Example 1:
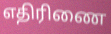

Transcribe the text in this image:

எதிரிணை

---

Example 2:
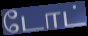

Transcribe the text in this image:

டோட்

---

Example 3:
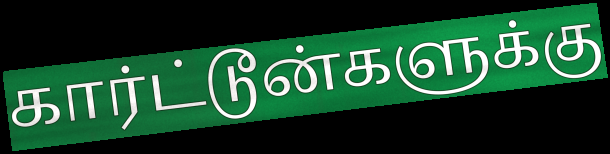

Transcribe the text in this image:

கார்ட்டூன்களுக்கு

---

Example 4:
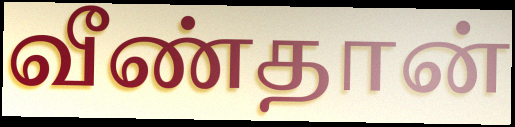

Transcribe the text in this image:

வீண்தான்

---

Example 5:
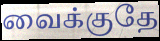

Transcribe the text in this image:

வைக்குதே